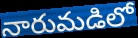
నారుమడిలో